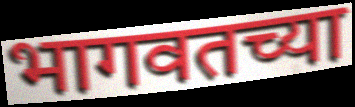
भागवतच्या